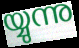
യ്യുന്നു